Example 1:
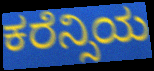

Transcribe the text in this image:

ಕರೆನ್ಸಿಯ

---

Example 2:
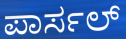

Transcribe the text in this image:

ಪಾರ್ಸಲ್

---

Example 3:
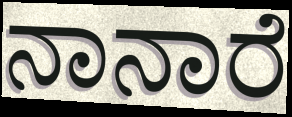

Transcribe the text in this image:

ನಾನಾರೆ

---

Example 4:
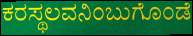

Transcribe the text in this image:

ಕರಸ್ಥಲವನಿಂಬುಗೊಂಡೆ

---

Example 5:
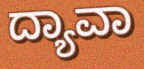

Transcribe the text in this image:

ದ್ಯಾವಾ